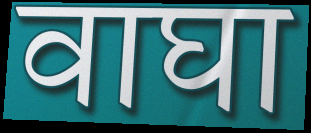
वाघा